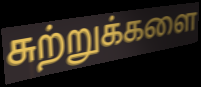
சுற்றுக்களை